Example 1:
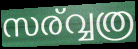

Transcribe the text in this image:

സര്വ്വത്ര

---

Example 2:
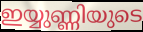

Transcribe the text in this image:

ഇയ്യുണ്ണിയുടെ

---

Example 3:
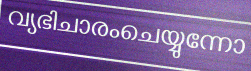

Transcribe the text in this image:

വ്യഭിചാരംചെയ്യുന്നോ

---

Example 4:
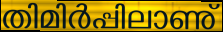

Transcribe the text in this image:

തിമിർപ്പിലാണു്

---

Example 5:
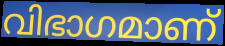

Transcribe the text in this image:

വിഭാഗമാണ്